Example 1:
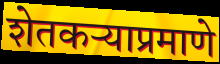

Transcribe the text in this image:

शेतकऱ्याप्रमाणे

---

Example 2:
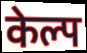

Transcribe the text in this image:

केल्प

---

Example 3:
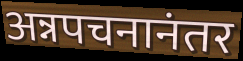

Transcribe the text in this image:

अन्नपचनानंतर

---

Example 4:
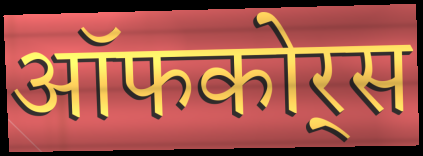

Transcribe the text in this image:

ऑफकोर्स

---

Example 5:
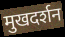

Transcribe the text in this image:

मुखदर्शन